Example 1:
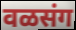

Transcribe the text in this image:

वळसंग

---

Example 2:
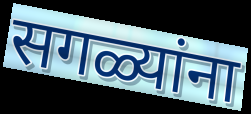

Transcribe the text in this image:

सगळ्यांना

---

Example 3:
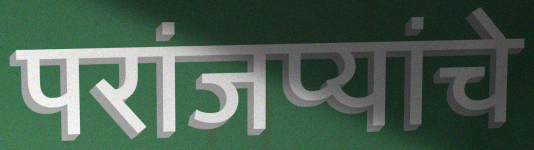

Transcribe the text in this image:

परांजप्यांचे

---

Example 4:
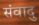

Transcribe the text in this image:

संवादु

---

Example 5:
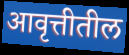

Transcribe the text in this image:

आवृत्तीतील